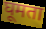
घूमता